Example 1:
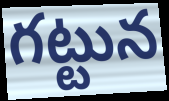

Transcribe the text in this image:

గట్టున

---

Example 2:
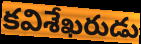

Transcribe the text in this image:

కవిశేఖరుడు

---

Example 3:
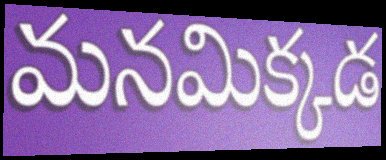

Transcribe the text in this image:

మనమిక్కడ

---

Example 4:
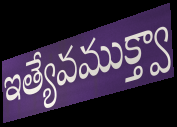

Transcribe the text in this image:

ఇత్యేవముక్త్వా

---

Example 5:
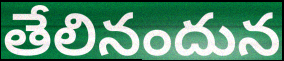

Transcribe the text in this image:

తేలినందున